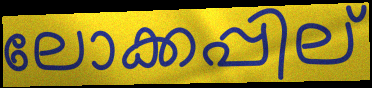
ലോക്കപ്പില്